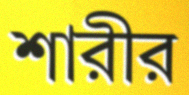
শারীর